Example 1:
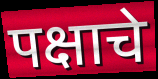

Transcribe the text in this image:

पक्षाचे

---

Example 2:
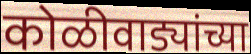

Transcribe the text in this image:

कोळीवाड्यांच्या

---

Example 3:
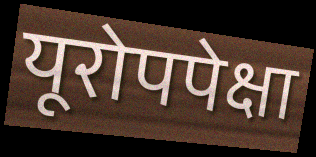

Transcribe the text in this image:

यूरोपपेक्षा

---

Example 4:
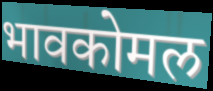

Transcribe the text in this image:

भावकोमल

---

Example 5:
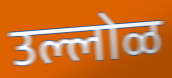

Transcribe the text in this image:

उल्लोळ